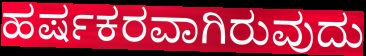
ಹರ್ಷಕರವಾಗಿರುವುದು